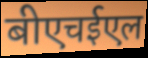
बीएचईएल